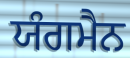
ਯੰਗਮੈਨ